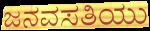
ಜನವಸತಿಯು